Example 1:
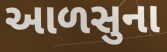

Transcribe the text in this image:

આળસુના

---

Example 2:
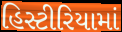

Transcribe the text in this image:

હિસ્ટીરિયામાં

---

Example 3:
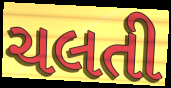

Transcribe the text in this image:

ચલતી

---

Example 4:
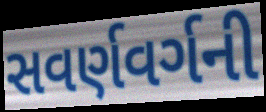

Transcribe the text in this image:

સવર્ણવર્ગની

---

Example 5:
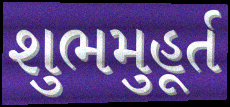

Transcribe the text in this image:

શુભમુહૂર્ત